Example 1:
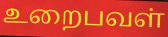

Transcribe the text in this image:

உறைபவள்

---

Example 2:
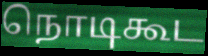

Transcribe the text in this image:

நொடிகூட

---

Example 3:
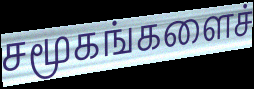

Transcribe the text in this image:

சமூகங்களைச்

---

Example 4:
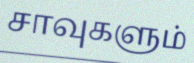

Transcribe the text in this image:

சாவுகளும்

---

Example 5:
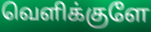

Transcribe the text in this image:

வெளிக்குளே